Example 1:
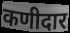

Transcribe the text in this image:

कणीदार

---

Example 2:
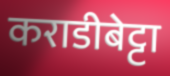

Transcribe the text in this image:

कराडीबेट्टा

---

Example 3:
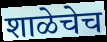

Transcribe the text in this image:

शाळेचेच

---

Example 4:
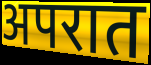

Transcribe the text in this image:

अपरात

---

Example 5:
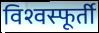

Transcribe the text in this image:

विश्वस्फूर्ती